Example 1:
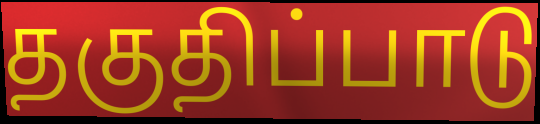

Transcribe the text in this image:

தகுதிப்பாடு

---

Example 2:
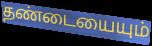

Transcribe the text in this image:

தண்டையையும்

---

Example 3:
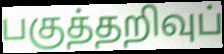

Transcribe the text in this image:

பகுத்தறிவுப்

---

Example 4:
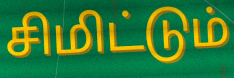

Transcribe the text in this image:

சிமிட்டும்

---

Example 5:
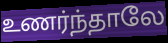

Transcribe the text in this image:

உணர்ந்தாலே